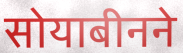
सोयाबीनने